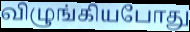
விழுங்கியபோது